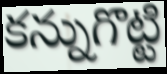
కన్నుగొట్టి